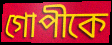
গোপীকে